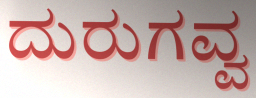
ದುರುಗವ್ವ